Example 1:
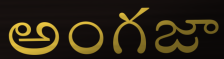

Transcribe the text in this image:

అంగజా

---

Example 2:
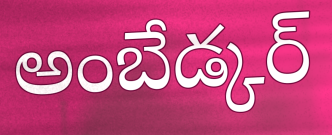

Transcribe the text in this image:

అంబేడ్కర్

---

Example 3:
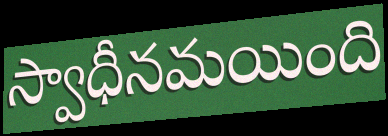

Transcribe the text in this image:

స్వాధీనమయింది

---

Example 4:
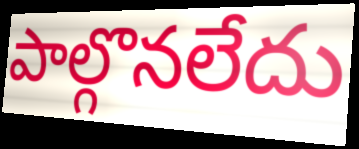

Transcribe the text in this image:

పాల్గొనలేదు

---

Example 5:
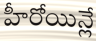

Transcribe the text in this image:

హీరోయిన్లే